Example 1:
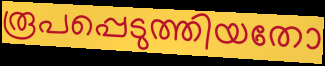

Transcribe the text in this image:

രൂപപ്പെടുത്തിയതോ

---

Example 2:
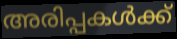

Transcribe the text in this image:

അരിപ്പകൾക്ക്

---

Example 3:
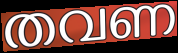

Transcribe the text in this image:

തവണ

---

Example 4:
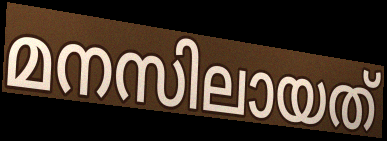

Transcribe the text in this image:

മനസിലായത്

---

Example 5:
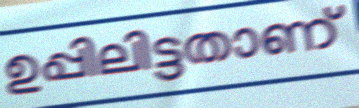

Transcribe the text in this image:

ഉപ്പിലിട്ടതാണ്